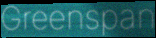
Greenspan